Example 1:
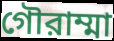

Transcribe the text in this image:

গৌরাম্মা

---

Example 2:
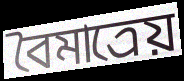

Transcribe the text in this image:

বৈমাত্রেয়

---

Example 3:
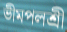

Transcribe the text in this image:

ভীমপলশ্রী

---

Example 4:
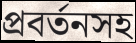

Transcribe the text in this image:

প্রবর্তনসহ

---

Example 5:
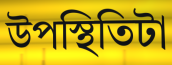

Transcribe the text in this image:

উপস্থিতিটা